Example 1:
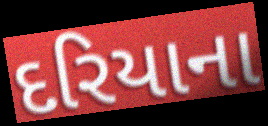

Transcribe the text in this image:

દરિયાના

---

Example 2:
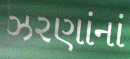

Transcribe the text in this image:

ઝરણાંનાં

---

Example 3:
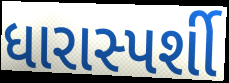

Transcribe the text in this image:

ધારાસ્પર્શી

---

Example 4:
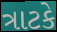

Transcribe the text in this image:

ત્રાટકે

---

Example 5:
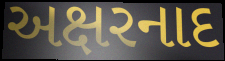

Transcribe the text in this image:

અક્ષરનાદ